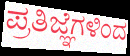
ಪ್ರತಿಜ್ಞೆಗಳಿಂದ